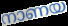
നാണയ